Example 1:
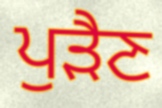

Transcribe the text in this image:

ਪੁੜੈਣ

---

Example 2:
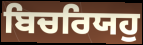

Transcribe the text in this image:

ਬਿਚਰਿਯਹੁ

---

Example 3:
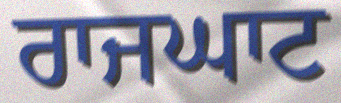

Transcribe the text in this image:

ਰਾਜਘਾਟ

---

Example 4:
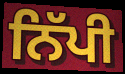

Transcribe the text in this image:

ਨਿੱਪੀ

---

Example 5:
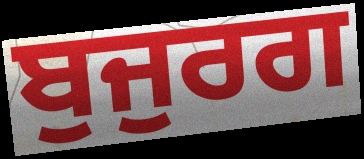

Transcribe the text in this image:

ਬੁਜੁਰਗ